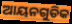
ଆୟନଗୁଡିକ